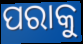
ପରାକୁ